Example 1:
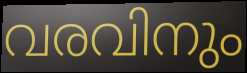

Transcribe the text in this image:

വരവിനും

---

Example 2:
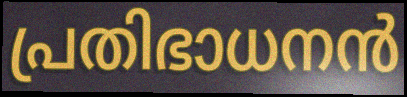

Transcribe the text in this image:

പ്രതിഭാധനൻ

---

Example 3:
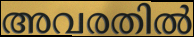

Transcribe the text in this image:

അവരതിൽ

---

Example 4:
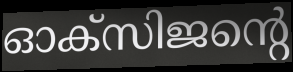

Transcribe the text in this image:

ഓക്സിജന്റെ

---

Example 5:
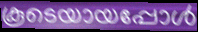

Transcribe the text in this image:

കൂടെയായപ്പോൾ